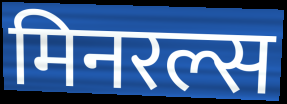
मिनरल्स